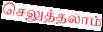
செலுத்தலாம்